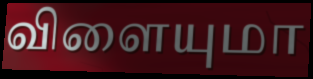
விளையுமா